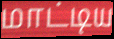
மாட்டிய